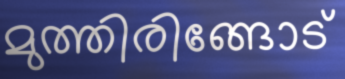
മുത്തിരിങ്ങോട്